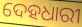
ଦେହଧାରୀ